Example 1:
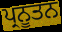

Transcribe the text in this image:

ਪ੍ਰਨੂਤਨ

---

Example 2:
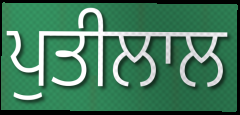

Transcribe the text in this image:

ਪੁਤੀਲਾਲ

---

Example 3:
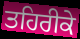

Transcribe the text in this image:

ਤਹਿਰੀਕੇ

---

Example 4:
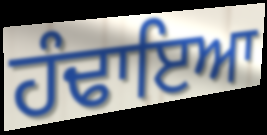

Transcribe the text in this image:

ਹੰਢਾਇਆ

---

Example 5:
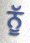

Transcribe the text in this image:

ਨੂੱ